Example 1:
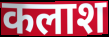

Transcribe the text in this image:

कलाश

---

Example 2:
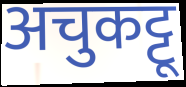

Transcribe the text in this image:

अचुकट्टू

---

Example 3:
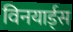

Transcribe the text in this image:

विनयार्ड्स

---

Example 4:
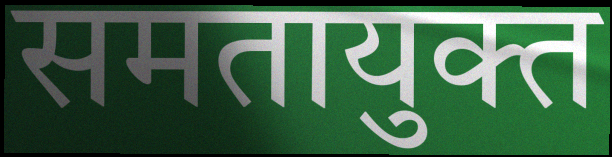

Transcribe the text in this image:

समतायुक्त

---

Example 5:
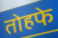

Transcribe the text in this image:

तोहफे